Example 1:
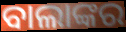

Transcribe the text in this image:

ବାଲାଙ୍କର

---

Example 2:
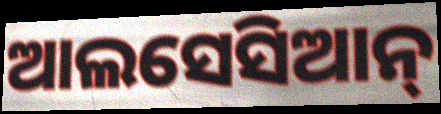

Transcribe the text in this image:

ଆଲସେସିଆନ୍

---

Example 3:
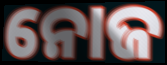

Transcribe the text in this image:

ନୋଜ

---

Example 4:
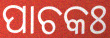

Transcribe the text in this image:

ପାଚକଃ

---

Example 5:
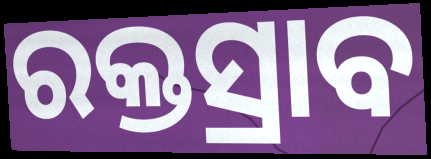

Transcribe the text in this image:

ରକ୍ତସ୍ରାବ